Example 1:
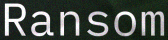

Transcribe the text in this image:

Ransom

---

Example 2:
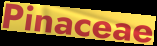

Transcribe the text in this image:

Pinaceae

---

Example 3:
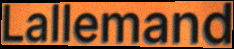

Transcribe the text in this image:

Lallemand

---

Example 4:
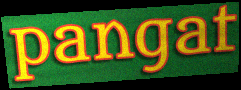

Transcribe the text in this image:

pangat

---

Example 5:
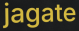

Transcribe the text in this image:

jagate